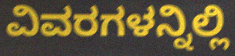
ವಿವರಗಳನ್ನಿಲ್ಲಿ